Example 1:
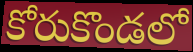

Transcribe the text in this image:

కోరుకొండలో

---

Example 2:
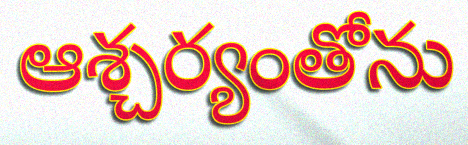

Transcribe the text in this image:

ఆశ్చర్యంతోను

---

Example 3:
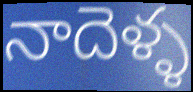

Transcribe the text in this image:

నాదెళ్ళ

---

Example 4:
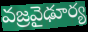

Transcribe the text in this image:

వజ్రవైఢూర్య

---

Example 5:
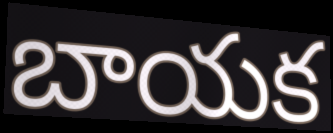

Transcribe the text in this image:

బాయక